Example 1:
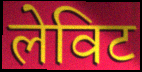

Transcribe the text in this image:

लेविट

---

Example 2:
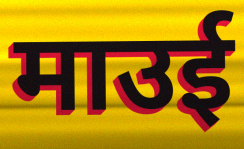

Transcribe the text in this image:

माउई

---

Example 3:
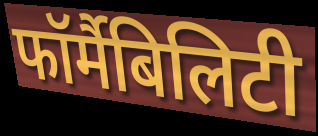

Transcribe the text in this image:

फॉर्मैबिलिटी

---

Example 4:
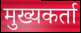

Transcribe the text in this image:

मुख्यकर्ता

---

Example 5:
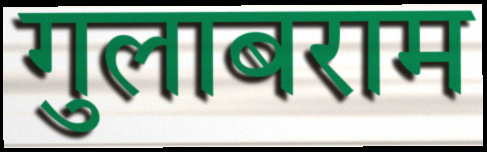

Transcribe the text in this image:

गुलाबराम